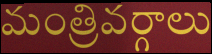
మంత్రివర్గాలు